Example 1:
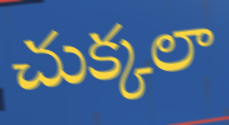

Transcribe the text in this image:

చుక్కలా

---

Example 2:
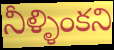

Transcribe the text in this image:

నీళ్ళింకని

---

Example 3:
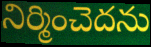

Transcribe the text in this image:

నిర్మించెదను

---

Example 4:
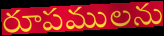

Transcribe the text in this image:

రూపములను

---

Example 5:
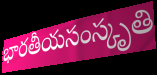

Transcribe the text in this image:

భారతీయసంస్కృతి